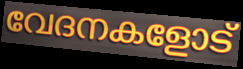
വേദനകളോട്